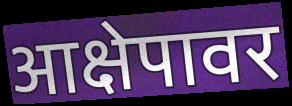
आक्षेपावर